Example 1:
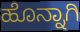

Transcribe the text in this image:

ಹೊನ್ನಾಗಿ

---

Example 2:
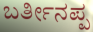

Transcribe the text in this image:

ಬರ್ತೀನಪ್ಪ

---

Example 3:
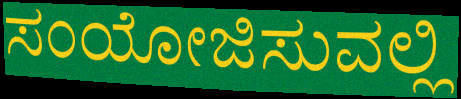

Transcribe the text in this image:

ಸಂಯೋಜಿಸುವಲ್ಲಿ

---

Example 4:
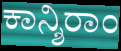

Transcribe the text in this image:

ಕಾನ್ಶಿರಾಂ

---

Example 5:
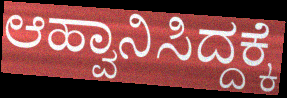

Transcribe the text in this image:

ಆಹ್ವಾನಿಸಿದ್ದಕ್ಕೆ